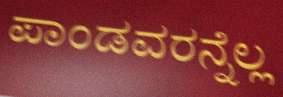
ಪಾಂಡವರನ್ನೆಲ್ಲ